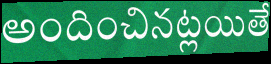
అందించినట్లయితే